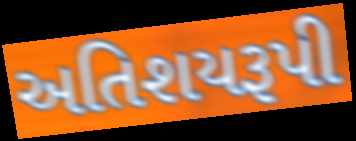
અતિશયરૂપી